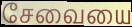
சேவையை